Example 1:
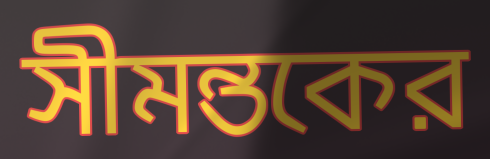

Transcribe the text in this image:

সীমন্তকের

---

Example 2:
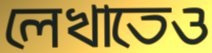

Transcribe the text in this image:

লেখাতেও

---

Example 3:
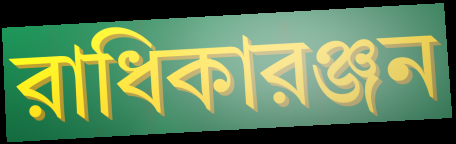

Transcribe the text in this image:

রাধিকারঞ্জন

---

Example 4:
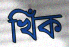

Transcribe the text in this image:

খিঁক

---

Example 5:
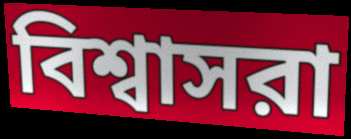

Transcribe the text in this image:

বিশ্বাসরা